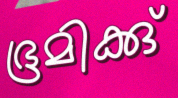
ഭൂമിക്കു്